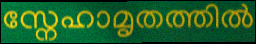
സ്നേഹാമൃതത്തിൽ